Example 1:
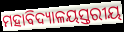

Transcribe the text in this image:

ମହାବିଦ୍ୟାଳୟସ୍ତରୀୟ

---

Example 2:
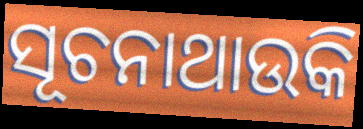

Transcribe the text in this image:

ସୂଚନାଥାଉକି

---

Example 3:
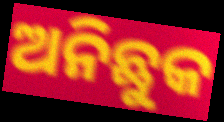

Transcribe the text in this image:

ଅନିଛୁକ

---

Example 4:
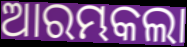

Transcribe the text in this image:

ଆରମ୍ଭକଲା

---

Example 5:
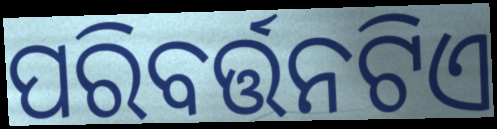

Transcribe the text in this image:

ପରିବର୍ତ୍ତନଟିଏ